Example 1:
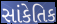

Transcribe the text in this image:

સાંકેતિક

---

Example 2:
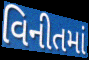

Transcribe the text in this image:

વિનીતમાં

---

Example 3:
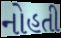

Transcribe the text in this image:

નોહતી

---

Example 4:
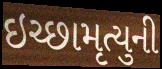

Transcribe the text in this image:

ઇચ્છામૃત્યુની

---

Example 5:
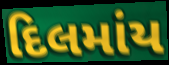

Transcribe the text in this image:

દિલમાંય